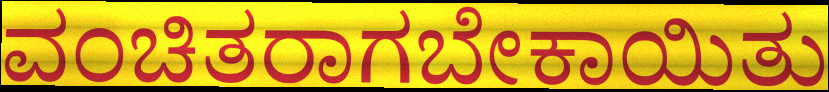
ವಂಚಿತರಾಗಬೇಕಾಯಿತು